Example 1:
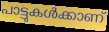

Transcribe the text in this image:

പാട്ടുകൾക്കാണ്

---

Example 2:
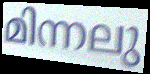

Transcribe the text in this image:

മിന്നലു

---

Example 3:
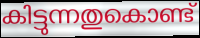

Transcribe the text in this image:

കിട്ടുന്നതുകൊണ്ട്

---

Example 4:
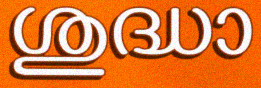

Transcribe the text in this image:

ശുദ്ധാ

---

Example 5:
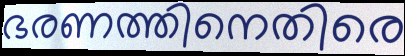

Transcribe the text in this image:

ഭരണത്തിനെതിരെ